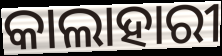
କାଲାହାରୀ